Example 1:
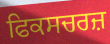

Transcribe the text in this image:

ਫਿਕਸਚਰਜ਼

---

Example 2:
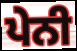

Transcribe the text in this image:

ਪੇਨੀ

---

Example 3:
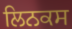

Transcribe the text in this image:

ਲਿਨਕਸ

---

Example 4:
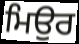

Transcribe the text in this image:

ਮਿਉਰ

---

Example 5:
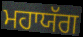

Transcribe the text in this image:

ਮਹਾਯੱਗ